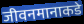
जीवनमानाकडे